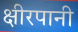
क्षीरपानी